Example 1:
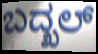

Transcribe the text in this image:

ಬದ್ಖಲ್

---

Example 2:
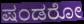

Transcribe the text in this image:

ಷಂಡರೋ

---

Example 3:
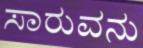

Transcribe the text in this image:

ಸಾರುವನು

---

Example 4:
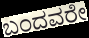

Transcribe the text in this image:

ಬಂದವರೇ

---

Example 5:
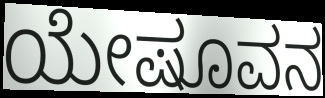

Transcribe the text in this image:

ಯೇಷೂವನ